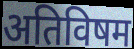
अतिविषम